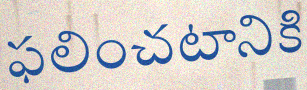
ఫలించటానికి